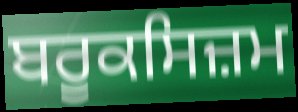
ਬਰੂਕਸਿਜ਼ਮ